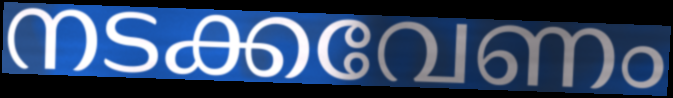
നടക്കവേണം